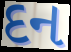
દન